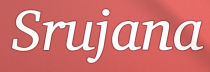
Srujana